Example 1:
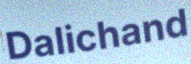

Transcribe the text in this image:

Dalichand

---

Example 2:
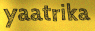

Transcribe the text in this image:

yaatrika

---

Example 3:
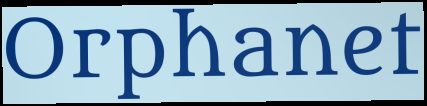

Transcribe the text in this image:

Orphanet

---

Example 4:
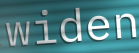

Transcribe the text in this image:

widen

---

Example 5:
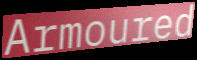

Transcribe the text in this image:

Armoured